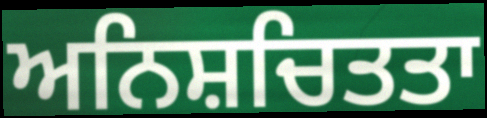
ਅਨਿਸ਼ਚਿਤਤਾ